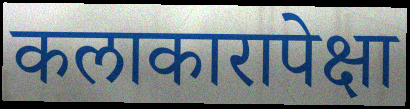
कलाकारापेक्षा